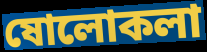
ষোলোকলা